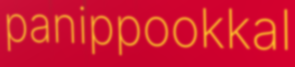
panippookkal